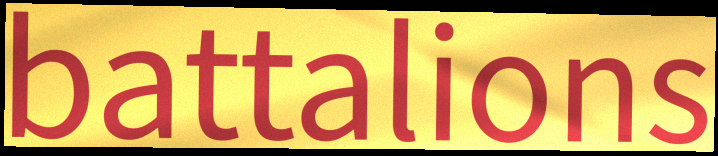
battalions